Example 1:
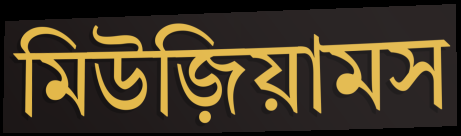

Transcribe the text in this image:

মিউজ়িয়ামস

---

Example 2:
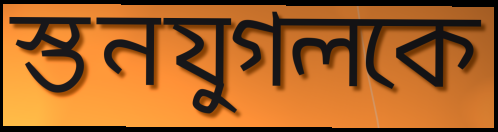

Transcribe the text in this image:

স্তনযুগলকে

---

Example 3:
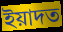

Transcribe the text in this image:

ইয়াদত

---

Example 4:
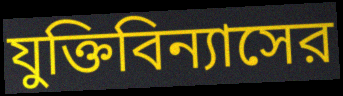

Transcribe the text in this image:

যুক্তিবিন্যাসের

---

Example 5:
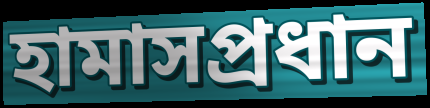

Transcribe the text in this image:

হামাসপ্রধান